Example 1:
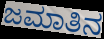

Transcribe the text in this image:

ಜಮಾತಿನ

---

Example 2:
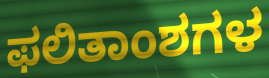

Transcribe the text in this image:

ಫಲಿತಾಂಶಗಳ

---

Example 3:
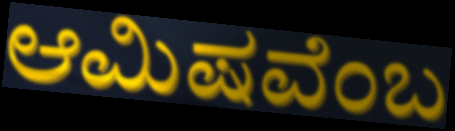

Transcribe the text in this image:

ಆಮಿಷವೆಂಬ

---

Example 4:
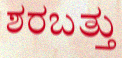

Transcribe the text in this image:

ಶರಬತ್ತು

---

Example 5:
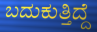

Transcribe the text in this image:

ಬದುಕುತ್ತಿದ್ದೆ